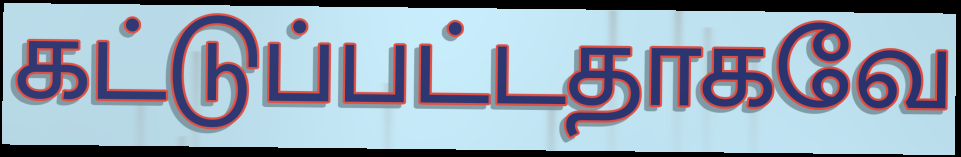
கட்டுப்பட்டதாகவே